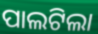
ପାଲଟିଲା